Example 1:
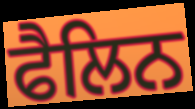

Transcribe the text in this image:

ਫੈਲਿਨ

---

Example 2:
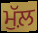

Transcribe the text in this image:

ਮੁੱਲ਼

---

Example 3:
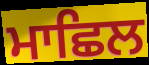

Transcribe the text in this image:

ਮਾਛਿਲ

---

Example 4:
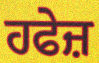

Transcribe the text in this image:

ਹਫੇਜ਼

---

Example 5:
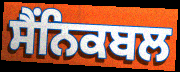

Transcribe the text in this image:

ਸੈੰਨਿਕਬਲ